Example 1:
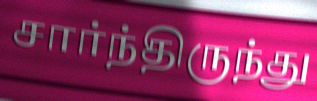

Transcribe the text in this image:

சார்ந்திருந்து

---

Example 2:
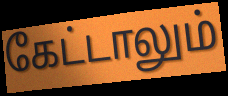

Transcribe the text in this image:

கேட்டாலும்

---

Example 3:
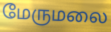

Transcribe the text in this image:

மேருமலை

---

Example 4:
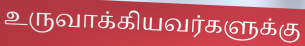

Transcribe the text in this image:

உருவாக்கியவர்களுக்கு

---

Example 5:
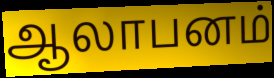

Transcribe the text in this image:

ஆலாபனம்